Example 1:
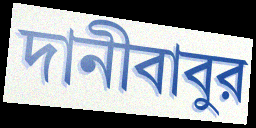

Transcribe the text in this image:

দানীবাবুর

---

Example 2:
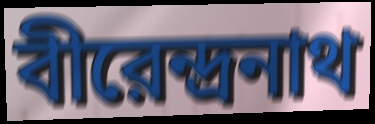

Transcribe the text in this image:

বীরেন্দ্রনাথ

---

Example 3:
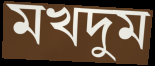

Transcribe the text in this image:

মখদুম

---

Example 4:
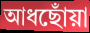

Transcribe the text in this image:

আধছোঁয়া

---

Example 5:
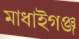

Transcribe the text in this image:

মাধাইগঞ্জ